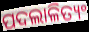
ପଦଲାଳିତ୍ୟଂ